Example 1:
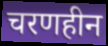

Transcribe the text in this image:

चरणहीन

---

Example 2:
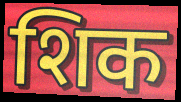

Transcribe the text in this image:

शिक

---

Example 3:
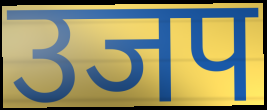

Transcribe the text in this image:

उजप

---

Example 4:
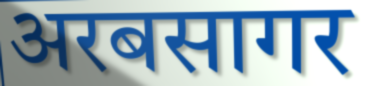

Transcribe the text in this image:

अरबसागर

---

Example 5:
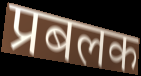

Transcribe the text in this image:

प्रबलक